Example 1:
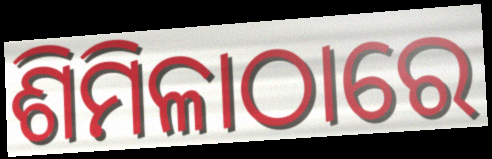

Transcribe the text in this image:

ଶିମିଳାଠାରେ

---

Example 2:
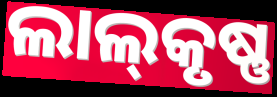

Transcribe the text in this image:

ଲାଲ୍‌କୃଷ୍ଣ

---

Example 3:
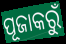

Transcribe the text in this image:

ପୂଜାକରୁଁ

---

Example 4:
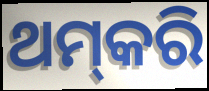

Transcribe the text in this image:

ଥମ୍‌କରି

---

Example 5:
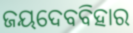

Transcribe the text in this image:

ଜୟଦେବବିହାର